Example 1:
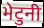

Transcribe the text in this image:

भेटुनी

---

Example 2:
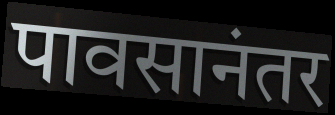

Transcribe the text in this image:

पावसानंतर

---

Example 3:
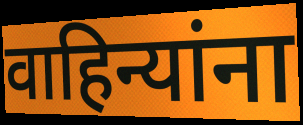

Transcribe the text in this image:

वाहिन्यांना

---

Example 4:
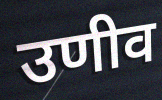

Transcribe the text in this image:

उणीव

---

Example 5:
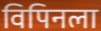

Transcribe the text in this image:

विपिनला